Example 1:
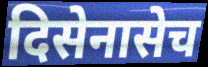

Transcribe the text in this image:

दिसेनासेच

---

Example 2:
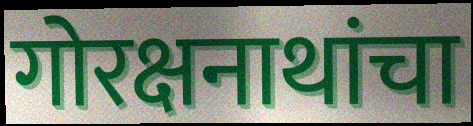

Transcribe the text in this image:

गोरक्षनाथांचा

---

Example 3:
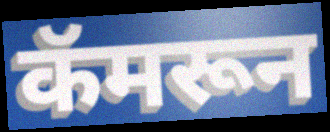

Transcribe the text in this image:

कॅमरून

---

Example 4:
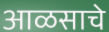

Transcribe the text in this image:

आळसाचे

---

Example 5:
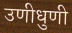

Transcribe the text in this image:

उणीधुणी